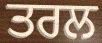
ਤਰਲ